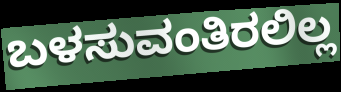
ಬಳಸುವಂತಿರಲಿಲ್ಲ